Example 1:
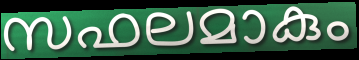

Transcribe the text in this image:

സഫലമാകും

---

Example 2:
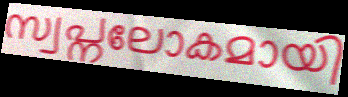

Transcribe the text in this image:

സ്വപ്നലോകമായി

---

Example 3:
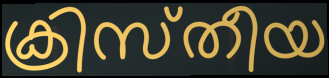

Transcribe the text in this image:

ക്രിസ്‌തീയ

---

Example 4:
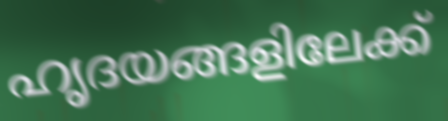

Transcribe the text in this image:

ഹൃദയങ്ങളിലേക്ക്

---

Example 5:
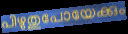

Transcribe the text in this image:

പിഴുതുപോയേക്കും